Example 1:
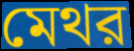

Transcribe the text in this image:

মেথর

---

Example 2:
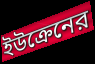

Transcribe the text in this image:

ইউক্রেনের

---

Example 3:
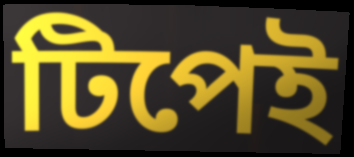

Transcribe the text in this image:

টিপেই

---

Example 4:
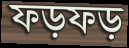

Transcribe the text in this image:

ফড়ফড়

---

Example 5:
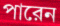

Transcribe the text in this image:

পারেন